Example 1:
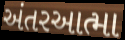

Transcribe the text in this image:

અંતરઆત્મા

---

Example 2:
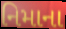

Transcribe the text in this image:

નિમાના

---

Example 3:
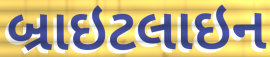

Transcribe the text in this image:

બ્રાઇટલાઇન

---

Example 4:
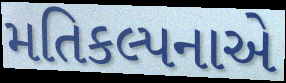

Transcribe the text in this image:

મતિકલ્પનાએ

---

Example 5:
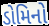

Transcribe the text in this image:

ડોમિનો